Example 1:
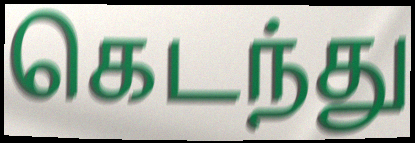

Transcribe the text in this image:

கெடந்து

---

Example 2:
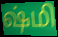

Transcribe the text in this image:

ஷ்மி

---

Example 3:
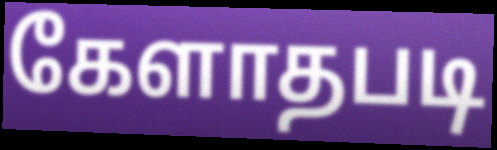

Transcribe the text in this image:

கேளாதபடி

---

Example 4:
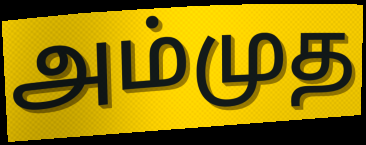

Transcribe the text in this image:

அம்முத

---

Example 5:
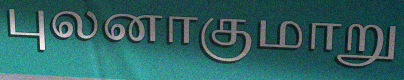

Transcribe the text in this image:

புலனாகுமாறு